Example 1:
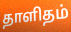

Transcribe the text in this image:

தாளிதம்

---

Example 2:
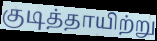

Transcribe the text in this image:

குடித்தாயிற்று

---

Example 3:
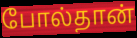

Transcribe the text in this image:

போல்தான்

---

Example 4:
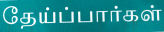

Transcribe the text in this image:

தேய்ப்பார்கள்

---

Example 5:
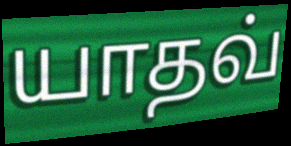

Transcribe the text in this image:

யாதவ்